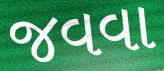
જવવા